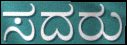
ಸದರು